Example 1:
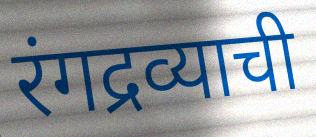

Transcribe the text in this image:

रंगद्रव्याची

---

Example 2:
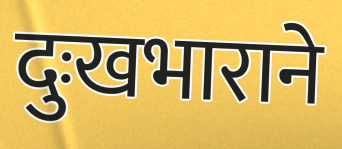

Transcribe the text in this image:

दुःखभाराने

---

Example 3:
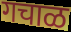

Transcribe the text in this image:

गचाळ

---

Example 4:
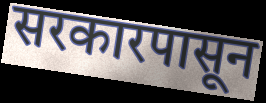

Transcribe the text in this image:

सरकारपासून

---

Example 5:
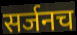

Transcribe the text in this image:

सर्जनच